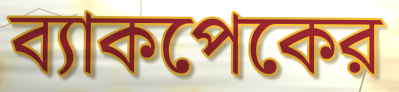
ব্যাকপেকের